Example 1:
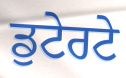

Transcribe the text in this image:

ਡੁਟੇਰਟੇ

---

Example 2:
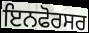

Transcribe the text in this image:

ਇਨਫੋਰਸਰ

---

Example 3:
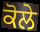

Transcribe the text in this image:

ਕੋਲੇ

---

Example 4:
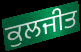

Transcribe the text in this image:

ਕੁਲਜੀਤ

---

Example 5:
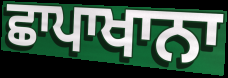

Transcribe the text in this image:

ਛਾਪਾਖਾਨਾ